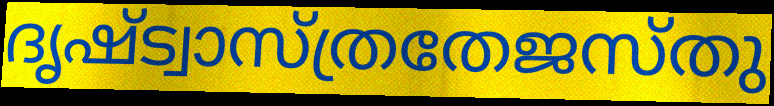
ദൃഷ്ട്വാസ്ത്രതേജസ്തു